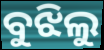
ବୁଝିଲୁ